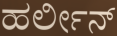
ಹರ್ಲೀನ್